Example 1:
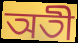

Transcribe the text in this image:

অতী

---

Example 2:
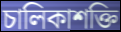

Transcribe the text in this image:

চালিকাশক্তি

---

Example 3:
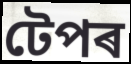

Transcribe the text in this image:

টেপৰ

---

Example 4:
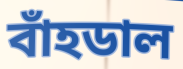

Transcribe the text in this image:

বাঁহডাল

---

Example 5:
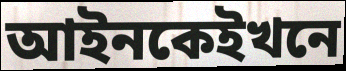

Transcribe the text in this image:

আইনকেইখনে